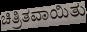
ಚಿತ್ರಿತವಾಯಿತು